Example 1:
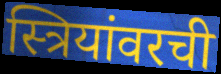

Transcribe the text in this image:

स्त्रियांवरची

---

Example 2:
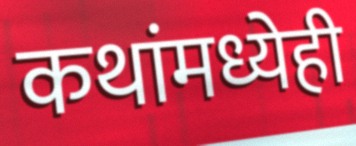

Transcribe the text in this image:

कथांमध्येही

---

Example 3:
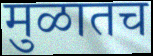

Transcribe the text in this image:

मुळातच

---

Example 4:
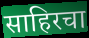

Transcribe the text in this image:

साहिरचा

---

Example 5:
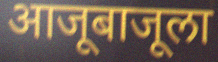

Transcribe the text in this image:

आजूबाजूला